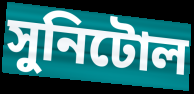
সুনিটোল